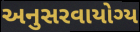
અનુસરવાયોગ્ય